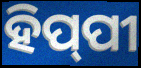
ହିପ୍‍ପୀ